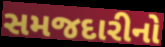
સમજદારીનો